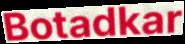
Botadkar